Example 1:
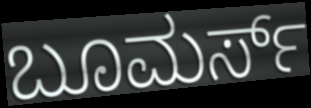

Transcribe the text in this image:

ಬೂಮರ್ಸ್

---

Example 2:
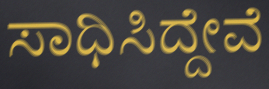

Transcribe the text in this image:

ಸಾಧಿಸಿದ್ದೇವೆ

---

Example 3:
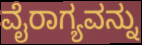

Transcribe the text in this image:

ವೈರಾಗ್ಯವನ್ನು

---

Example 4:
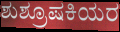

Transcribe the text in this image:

ಶುಶ್ರೂಷಕಿಯರ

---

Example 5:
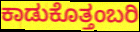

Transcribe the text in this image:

ಕಾಡುಕೊತ್ತಂಬರಿ